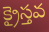
క్రైస్తవ